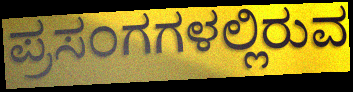
ಪ್ರಸಂಗಗಳಲ್ಲಿರುವ